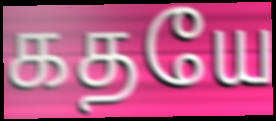
கதயே